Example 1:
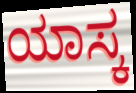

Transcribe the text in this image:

ಯಾಸ್ಕ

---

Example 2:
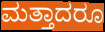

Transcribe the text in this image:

ಮತ್ತಾದರೂ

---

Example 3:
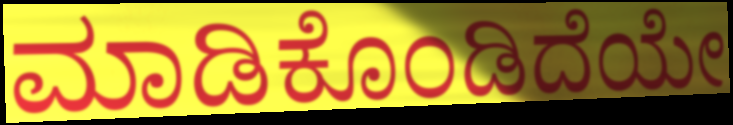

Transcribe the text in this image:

ಮಾಡಿಕೊಂಡಿದೆಯೇ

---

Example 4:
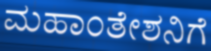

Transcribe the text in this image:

ಮಹಾಂತೇಶನಿಗೆ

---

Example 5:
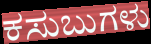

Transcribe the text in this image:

ಕಸುಬುಗಳು